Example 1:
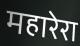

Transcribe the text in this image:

महारेरा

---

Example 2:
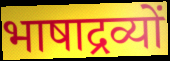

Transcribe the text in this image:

भाषाद्रव्यों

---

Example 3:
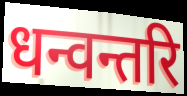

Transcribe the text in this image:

धन्वन्तरि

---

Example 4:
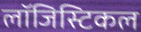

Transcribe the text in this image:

लॉजिस्टिकल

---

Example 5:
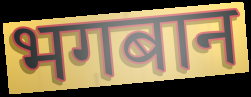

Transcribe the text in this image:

भगबान